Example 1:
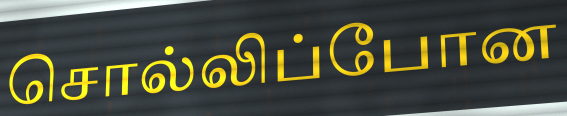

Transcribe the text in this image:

சொல்லிப்போன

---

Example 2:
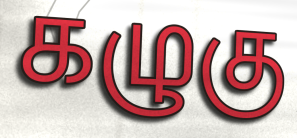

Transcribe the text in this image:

கழுகு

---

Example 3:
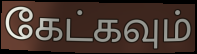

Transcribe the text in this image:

கேட்கவும்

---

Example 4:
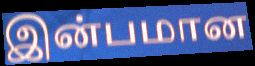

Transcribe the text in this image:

இன்பமான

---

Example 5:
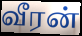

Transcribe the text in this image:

வீரன்